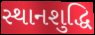
સ્થાનશુદ્ધિ